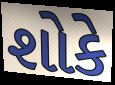
શોકે